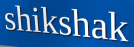
shikshak